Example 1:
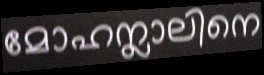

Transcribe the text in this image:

മോഹന്ലാലിനെ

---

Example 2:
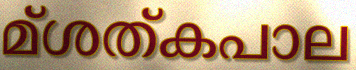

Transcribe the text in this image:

മ്ശത്കപാല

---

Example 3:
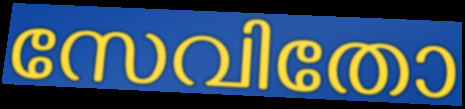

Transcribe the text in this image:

സേവിതോ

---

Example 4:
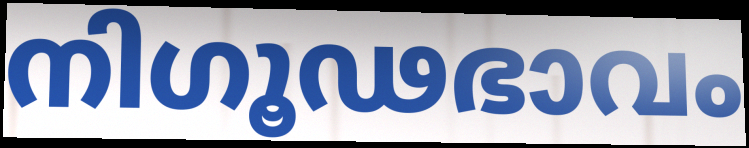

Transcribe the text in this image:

നിഗൂഢഭാവം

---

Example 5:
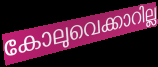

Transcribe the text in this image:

കോലുവെക്കാറില്ല